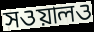
সওয়ালও